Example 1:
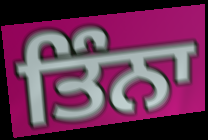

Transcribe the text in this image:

ਤਿੰਨਾ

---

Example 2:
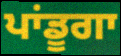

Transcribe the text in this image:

ਪਾਂਡੂਗਾ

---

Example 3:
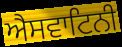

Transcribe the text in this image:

ਐਸਵਾਟਿਨੀ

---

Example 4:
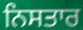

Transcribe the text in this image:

ਨਿਸਤਾਰ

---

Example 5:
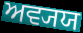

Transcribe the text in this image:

ਅਵ੍ਯਯ